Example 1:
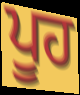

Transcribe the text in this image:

ਪੂਹ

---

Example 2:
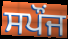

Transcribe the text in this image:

ਸਪੌਂਜ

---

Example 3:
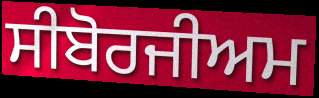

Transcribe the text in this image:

ਸੀਬੋਰਜੀਅਮ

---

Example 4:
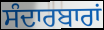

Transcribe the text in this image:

ਸੰਦਾਰਬਾਰਾਂ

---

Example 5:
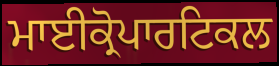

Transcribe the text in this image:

ਮਾਈਕ੍ਰੋਪਾਰਟਿਕਲ